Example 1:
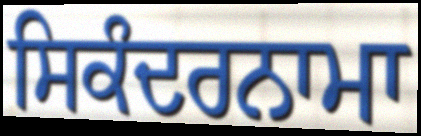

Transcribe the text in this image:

ਸਿਕੰਦਰਨਾਮਾ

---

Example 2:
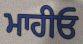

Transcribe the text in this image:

ਮਾਹੀਓ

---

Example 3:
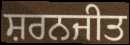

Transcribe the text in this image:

ਸ਼ਰਨਜੀਤ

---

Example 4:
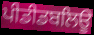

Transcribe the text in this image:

ਪੀਡੀਡਬਲਿਊ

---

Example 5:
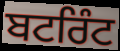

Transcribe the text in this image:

ਬਟਰਿੰਟ